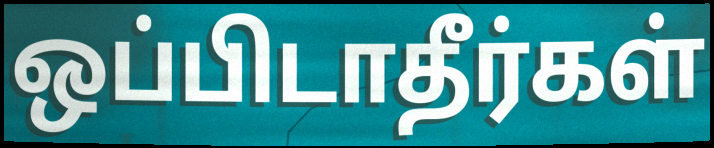
ஒப்பிடாதீர்கள்